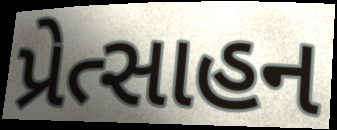
પ્રેત્સાહન